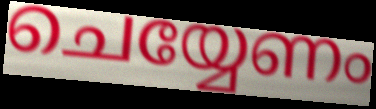
ചെയ്യേണം